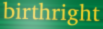
birthright